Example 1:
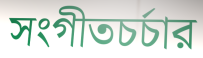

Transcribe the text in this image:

সংগীতচর্চার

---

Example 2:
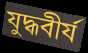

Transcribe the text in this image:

যুদ্ধবীর্য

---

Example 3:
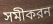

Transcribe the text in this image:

সমীকরন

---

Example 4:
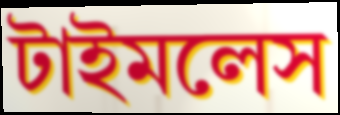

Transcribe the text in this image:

টাইমলেস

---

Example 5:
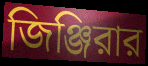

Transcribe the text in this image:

জিঞ্জিরার